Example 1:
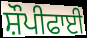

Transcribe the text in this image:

ਸ਼ੌਪੀਫਾਈ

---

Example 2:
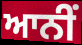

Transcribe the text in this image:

ਆਨੀਂ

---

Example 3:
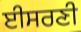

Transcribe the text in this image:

ਈਸਰਣੀ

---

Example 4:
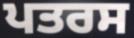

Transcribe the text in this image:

ਪਤਰਸ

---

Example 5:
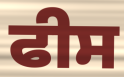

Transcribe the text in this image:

ਫੀਸ